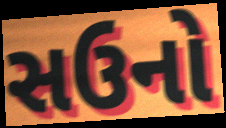
સઉનો